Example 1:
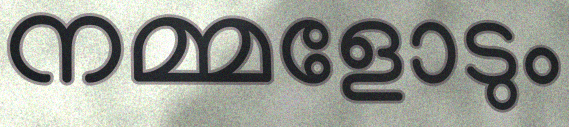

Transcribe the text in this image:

നമ്മളോടും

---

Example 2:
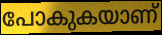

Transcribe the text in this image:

പോകുകയാണ്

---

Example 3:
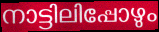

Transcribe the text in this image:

നാട്ടിലിപ്പോഴും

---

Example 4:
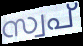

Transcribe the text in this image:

സ്വപ്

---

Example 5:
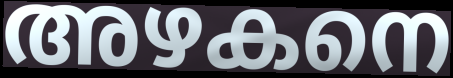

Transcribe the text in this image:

അഴകനെ